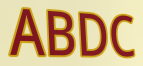
ABDC